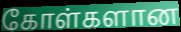
கோள்களான